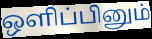
ஒளிப்பினும்